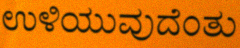
ಉಳಿಯುವುದೆಂತು